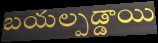
బయల్పడ్డాయి